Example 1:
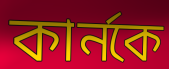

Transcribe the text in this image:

কার্নকে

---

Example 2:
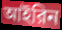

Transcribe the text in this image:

আইরিন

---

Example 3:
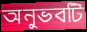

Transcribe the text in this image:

অনুভবটি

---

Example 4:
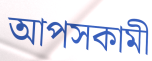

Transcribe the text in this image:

আপসকামী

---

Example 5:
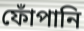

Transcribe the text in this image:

ফোঁপানি